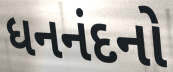
ધનનંદનો